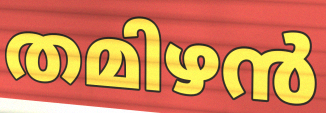
തമിഴൻ